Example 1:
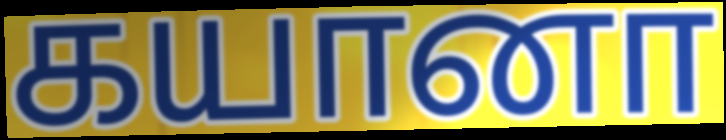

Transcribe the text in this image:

கயானா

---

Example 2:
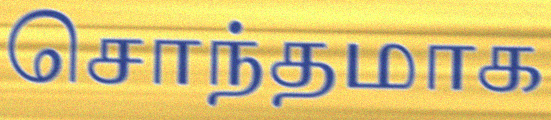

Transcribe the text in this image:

சொந்தமாக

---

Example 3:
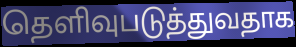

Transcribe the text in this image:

தெளிவுபடுத்துவதாக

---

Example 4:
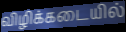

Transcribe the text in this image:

விழிக்கடையில்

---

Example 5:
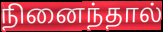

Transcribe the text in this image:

நினைந்தால்